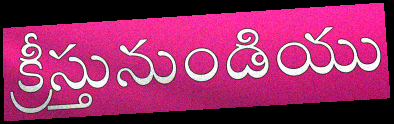
క్రీస్తునుండియు